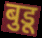
बुडू